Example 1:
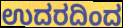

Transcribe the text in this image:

ಉದರದಿಂದ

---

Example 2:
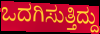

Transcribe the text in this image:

ಒದಗಿಸುತ್ತಿದ್ದು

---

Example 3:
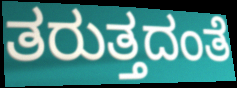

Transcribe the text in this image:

ತರುತ್ತದಂತೆ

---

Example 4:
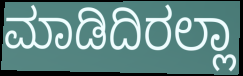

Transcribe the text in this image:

ಮಾಡಿದಿರಲ್ಲಾ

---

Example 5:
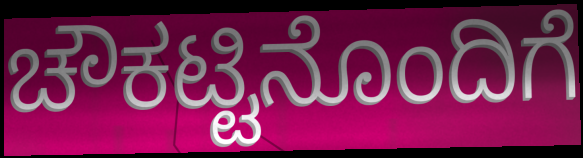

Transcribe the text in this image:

ಚೌಕಟ್ಟಿನೊಂದಿಗೆ